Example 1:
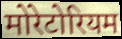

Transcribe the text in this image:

मोरेटोरियम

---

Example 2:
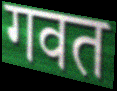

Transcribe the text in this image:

गवत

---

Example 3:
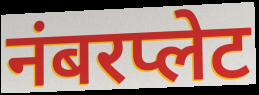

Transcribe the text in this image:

नंबरप्लेट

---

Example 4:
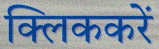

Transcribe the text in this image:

क्लिककरें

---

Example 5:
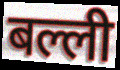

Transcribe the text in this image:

बल्ली